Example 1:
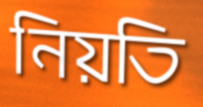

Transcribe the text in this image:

নিয়তি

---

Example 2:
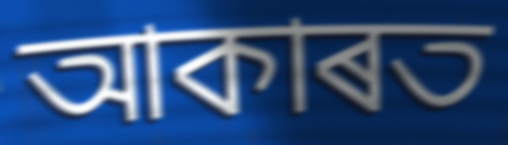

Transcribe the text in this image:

আকাৰত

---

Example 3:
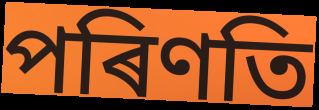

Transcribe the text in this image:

পৰিণতি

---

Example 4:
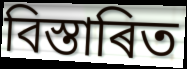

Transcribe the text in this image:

বিস্তাৰিত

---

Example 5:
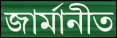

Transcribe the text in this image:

জাৰ্মানীত